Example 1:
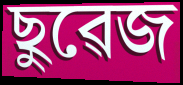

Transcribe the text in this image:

ছুৱেজ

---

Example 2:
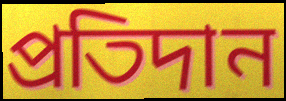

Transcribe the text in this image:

প্ৰতিদান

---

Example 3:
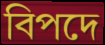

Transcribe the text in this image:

বিপদে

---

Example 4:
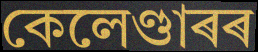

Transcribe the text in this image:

কেলেণ্ডাৰৰ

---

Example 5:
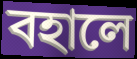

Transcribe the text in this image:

বহালে